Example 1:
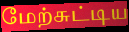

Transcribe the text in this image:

மேற்சுட்டிய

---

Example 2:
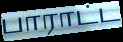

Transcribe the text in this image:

பாராட்ட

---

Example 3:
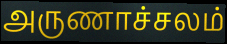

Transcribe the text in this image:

அருணாச்சலம்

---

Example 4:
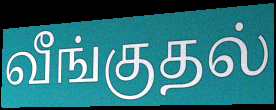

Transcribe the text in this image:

வீங்குதல்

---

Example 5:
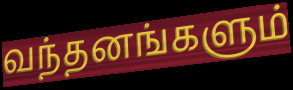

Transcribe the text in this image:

வந்தனங்களும்